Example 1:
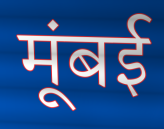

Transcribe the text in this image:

मूंबई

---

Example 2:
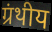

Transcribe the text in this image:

ग्रंथीय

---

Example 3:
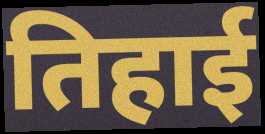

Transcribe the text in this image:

तिहाई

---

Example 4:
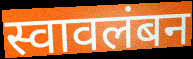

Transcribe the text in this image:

स्वावलंबन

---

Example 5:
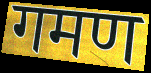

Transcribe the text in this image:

गमण